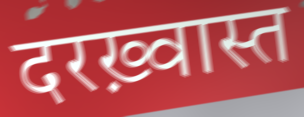
दरख़्वास्त